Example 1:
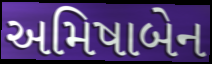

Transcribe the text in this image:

અમિષાબેન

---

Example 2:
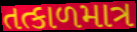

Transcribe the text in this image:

તત્કાળમાત્ર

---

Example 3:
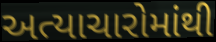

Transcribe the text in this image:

અત્યાચારોમાંથી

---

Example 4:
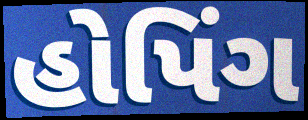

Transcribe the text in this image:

હોપિંગ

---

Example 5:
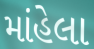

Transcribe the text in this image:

માંહેલા